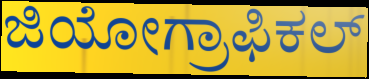
ಜಿಯೋಗ್ರಾಫಿಕಲ್